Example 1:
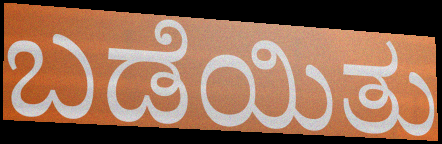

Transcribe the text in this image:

ಬಡೆಯಿತು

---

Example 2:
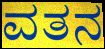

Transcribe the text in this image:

ವತನ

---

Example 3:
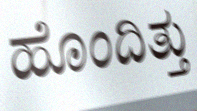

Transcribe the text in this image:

ಹೊಂದಿತ್ತು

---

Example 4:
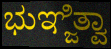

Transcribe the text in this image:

ಭುಞ್ಜಿತ್ವಾ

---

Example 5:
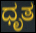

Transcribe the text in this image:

ಧೃತ